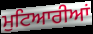
ਮੁਟਿਆਰੀਆਂ